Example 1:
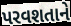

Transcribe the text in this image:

પરવશતાને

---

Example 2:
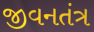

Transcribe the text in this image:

જીવનતંત્ર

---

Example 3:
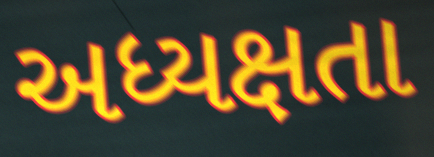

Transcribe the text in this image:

અધ્યક્ષતા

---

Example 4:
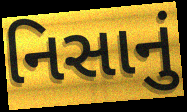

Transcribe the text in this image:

નિસાનું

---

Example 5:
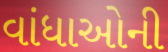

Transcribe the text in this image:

વાંધાઓની